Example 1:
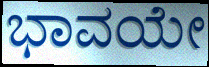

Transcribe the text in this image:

ಭಾವಯೇ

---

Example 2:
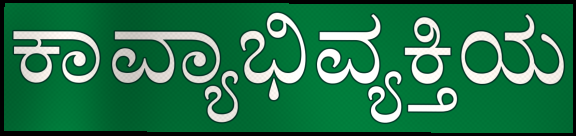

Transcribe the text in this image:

ಕಾವ್ಯಾಭಿವ್ಯಕ್ತಿಯ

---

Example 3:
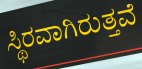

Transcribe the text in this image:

ಸ್ಥಿರವಾಗಿರುತ್ತವೆ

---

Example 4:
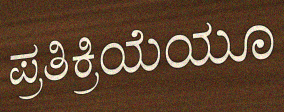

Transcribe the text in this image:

ಪ್ರತಿಕ್ರಿಯೆಯೂ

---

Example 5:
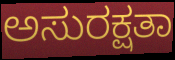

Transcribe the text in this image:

ಅಸುರಕ್ಷತಾ